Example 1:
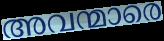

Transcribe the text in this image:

അവന്മാരെ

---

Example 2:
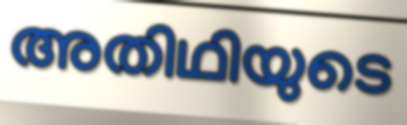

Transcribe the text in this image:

അതിഥിയുടെ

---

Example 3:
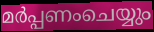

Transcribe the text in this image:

മർപ്പണംചെയ്യും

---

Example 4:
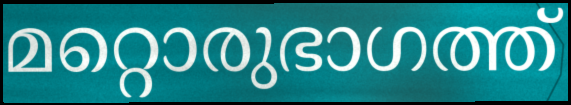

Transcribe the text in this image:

മറ്റൊരുഭാഗത്ത്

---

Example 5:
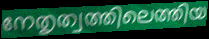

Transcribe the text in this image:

നേതൃത്വത്തിലെത്തിയ